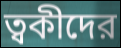
ত্বকীদের